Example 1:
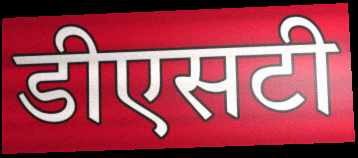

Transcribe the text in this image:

डीएसटी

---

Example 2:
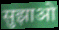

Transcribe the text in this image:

सुझाओ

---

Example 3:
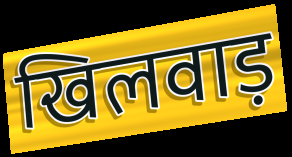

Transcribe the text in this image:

खिलवाड़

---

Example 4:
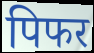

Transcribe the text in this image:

पिफर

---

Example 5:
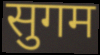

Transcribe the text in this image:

सुगम